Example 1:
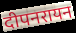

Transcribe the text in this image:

दीपनरायन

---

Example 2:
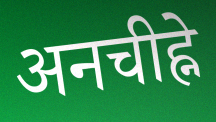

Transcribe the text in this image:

अनचीह्ने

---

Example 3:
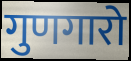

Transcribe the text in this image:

गुणगारो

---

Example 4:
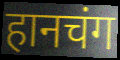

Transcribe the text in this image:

हानचंग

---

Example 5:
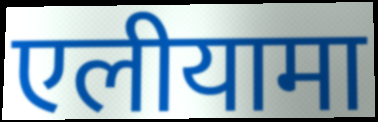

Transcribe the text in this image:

एलीयामा